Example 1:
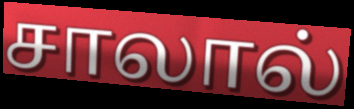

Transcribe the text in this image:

சாலால்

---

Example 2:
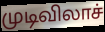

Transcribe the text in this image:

முடிவிலாச்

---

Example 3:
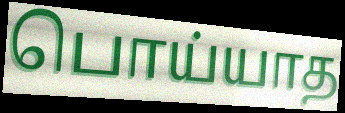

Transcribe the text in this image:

பொய்யாத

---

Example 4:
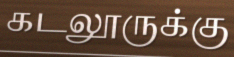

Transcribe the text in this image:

கடலூருக்கு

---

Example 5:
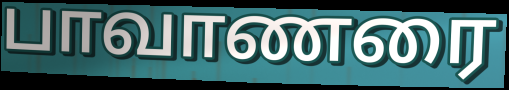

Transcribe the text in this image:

பாவாணரை